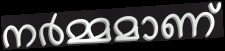
നർമ്മമാണ്